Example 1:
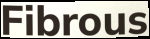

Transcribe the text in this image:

Fibrous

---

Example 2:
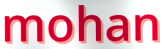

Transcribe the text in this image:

mohan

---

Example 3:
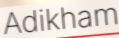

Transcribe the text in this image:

Adikham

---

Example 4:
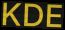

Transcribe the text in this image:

KDE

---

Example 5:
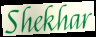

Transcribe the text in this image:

Shekhar